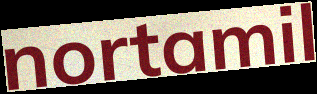
nortamil